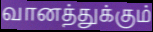
வானத்துக்கும்